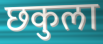
छकुला